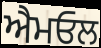
ਐਮਓਲ